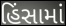
હિંસામાં